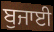
ਬੁਜਾਈ